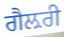
ਗੈਲ਼ਰੀ